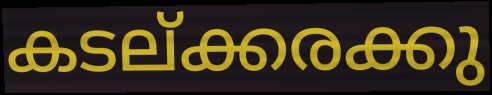
കടല്ക്കരക്കു